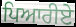
ਪਿਆਰੀਏ